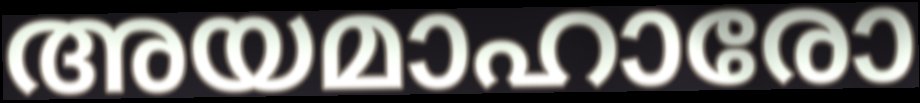
അയമാഹാരോ